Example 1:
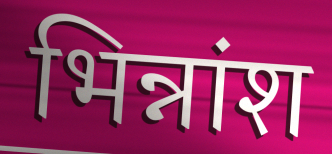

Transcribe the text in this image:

भिन्नांश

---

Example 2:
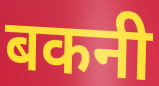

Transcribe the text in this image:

बकनी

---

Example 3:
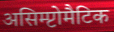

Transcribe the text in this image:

असिम्प्टोमैटिक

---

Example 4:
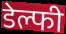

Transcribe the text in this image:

डेल्फी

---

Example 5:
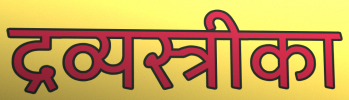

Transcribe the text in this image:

द्रव्यस्त्रीका